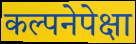
कल्पनेपेक्षा